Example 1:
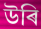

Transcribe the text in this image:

উৰি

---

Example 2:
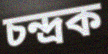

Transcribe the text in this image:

চন্দ্ৰক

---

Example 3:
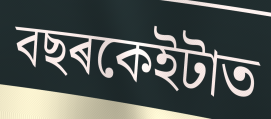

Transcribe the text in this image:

বছৰকেইটাত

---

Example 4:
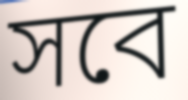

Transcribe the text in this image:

সবে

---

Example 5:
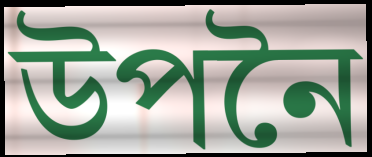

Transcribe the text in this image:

উপনৈ